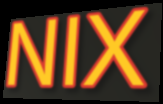
NIX